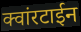
क्वांरटाईन